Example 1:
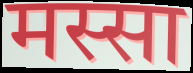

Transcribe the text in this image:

मस्‍सा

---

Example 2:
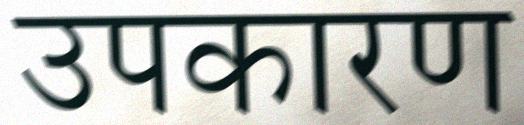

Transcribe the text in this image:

उपकारण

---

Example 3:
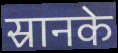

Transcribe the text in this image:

स्रानके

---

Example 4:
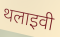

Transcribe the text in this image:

थलाइवी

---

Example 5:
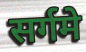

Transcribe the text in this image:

सर्गमे